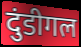
दुंडीगल